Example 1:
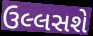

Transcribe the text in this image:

ઉલ્લસશે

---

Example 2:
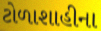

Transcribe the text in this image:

ટોળાશાહીના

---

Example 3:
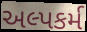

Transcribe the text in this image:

અલ્પકર્મ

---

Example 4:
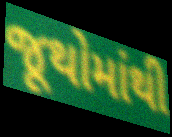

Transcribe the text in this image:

જૂથોમાંથી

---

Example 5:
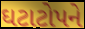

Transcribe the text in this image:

ઘટાટોપને